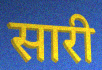
सारी